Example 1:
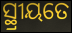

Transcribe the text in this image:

ସ୍ଥ୍ରୀୟତେ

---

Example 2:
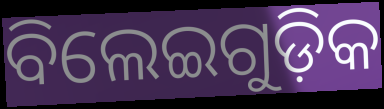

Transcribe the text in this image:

ବିଲେଇଗୁଡ଼ିକ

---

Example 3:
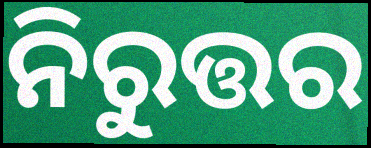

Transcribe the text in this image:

ନିରୁତ୍ତର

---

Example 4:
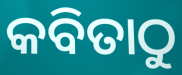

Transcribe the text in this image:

କବିତାଠୁ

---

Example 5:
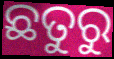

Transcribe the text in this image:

ଛତୁରୁ